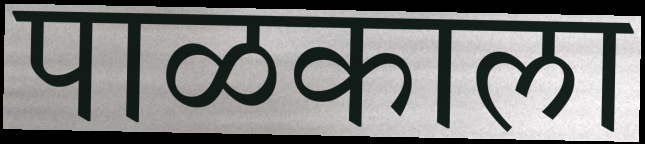
पाळकाला